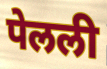
पेलली